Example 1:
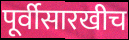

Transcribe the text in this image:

पूर्वीसारखीच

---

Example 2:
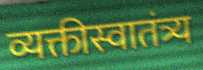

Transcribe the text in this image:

व्यक्तीस्वातंत्र्य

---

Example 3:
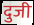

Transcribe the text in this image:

दुजी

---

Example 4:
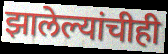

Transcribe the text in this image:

झालेल्यांचीही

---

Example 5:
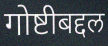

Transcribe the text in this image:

गोष्टीबद्दल